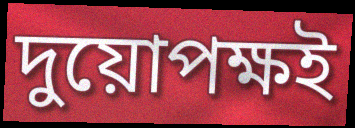
দুয়োপক্ষই